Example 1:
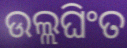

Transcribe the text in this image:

ଉଲ୍ଲଘିଂତ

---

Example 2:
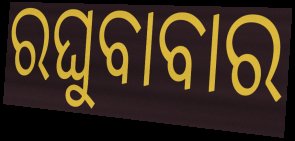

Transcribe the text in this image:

ରଘୁବାବାର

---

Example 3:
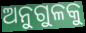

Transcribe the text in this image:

ଅନୁଗୁଳକୁ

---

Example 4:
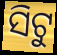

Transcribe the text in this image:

ସିଟୁ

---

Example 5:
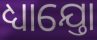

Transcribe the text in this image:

ଧ୍ୟାଯ୍ତୋ